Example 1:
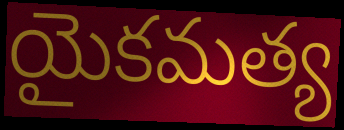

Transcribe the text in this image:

యైకమత్య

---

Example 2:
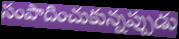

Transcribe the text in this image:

సంపాదించుకున్నప్పుడు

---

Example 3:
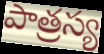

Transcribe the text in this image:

పాత్రస్య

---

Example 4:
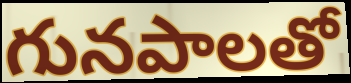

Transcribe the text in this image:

గునపాలతో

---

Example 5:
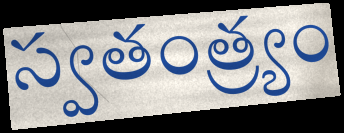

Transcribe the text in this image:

స్వతంత్ర్యం